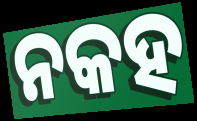
ନକହ